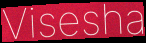
Visesha